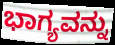
ಭಾಗ್ಯವನ್ನು